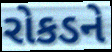
રોકડને